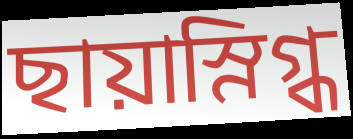
ছায়াস্নিগ্ধ